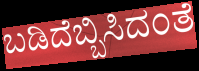
ಬಡಿದೆಬ್ಬಿಸಿದಂತೆ